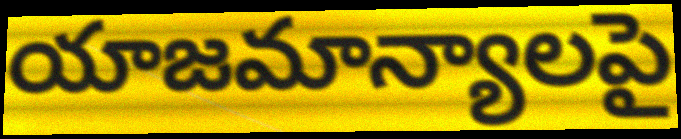
యాజమాన్యాలపై